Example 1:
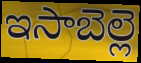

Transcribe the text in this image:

ఇసాబెల్లె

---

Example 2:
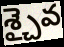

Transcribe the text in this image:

శ్చైవ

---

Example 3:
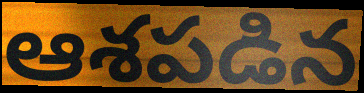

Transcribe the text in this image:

ఆశపడిన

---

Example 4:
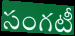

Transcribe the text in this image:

సంగటీ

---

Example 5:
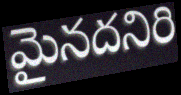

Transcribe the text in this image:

మైనదనిరి